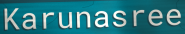
Karunasree